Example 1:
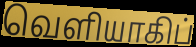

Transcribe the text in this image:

வெளியாகிப்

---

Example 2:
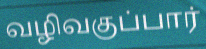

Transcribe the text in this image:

வழிவகுப்பார்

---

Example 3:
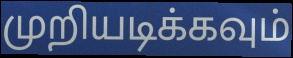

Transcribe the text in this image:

முறியடிக்கவும்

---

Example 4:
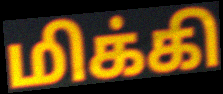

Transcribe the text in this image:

மிக்கி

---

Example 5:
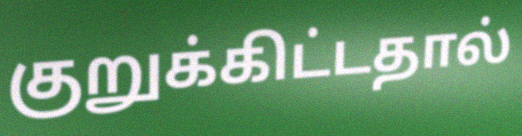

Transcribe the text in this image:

குறுக்கிட்டதால்